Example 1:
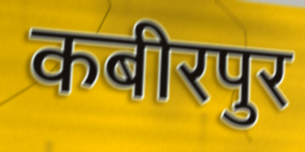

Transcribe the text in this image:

कबीरपुर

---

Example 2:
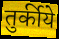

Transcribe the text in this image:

तुर्कीये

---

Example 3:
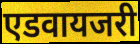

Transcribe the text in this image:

एडवायजरी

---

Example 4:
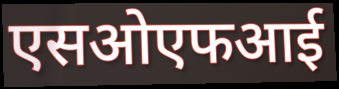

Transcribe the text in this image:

एसओएफआई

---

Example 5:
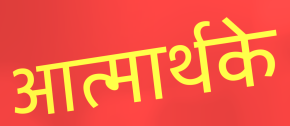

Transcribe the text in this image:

आत्मार्थके